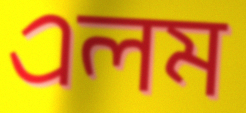
এলম